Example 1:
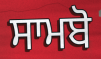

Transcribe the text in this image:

ਸਾਮਬੋ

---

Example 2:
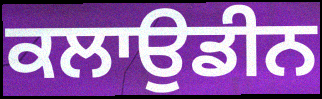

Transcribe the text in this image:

ਕਲਾਉਡੀਨ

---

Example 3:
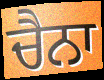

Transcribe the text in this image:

ਚੈਨਾ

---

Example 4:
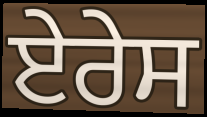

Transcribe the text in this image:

ਏਰੇਸ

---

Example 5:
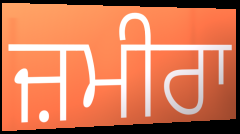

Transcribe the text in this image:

ਜ਼ਮੀਰਾ